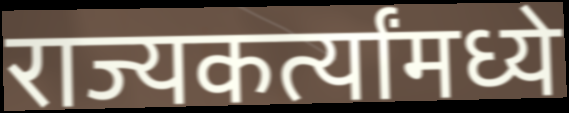
राज्यकर्त्यांमध्ये